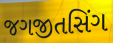
જગજીતસિંગ